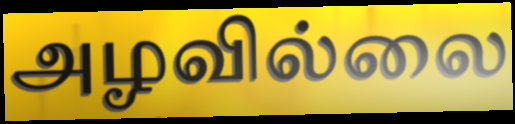
அழவில்லை